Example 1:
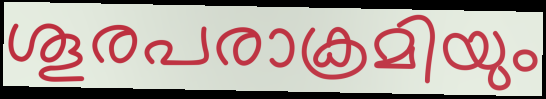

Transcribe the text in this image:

ശൂരപരാക്രമിയും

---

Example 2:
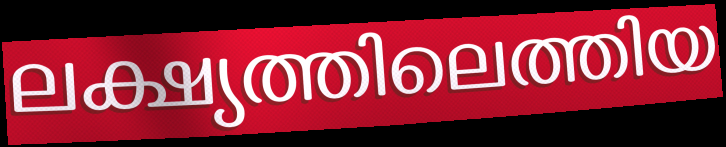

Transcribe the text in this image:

ലക്ഷ്യത്തിലെത്തിയ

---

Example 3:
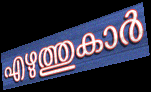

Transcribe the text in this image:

എഴുത്തുകാർ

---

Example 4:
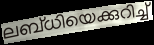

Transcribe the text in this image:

ലബ്ധിയെക്കുറിച്ച്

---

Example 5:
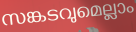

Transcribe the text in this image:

സങ്കടവുമെല്ലാം